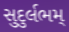
સુદુર્લભમ્